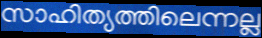
സാഹിത്യത്തിലെന്നല്ല